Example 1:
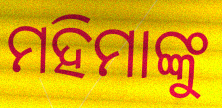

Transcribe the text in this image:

ମହିମାଙ୍କୁ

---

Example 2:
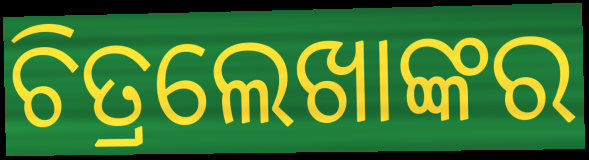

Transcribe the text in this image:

ଚିତ୍ରଲେଖାଙ୍କର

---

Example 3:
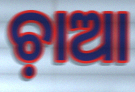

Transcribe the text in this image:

ଚ଼ାଆ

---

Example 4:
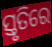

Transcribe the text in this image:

ସ୍ତୃତିରେ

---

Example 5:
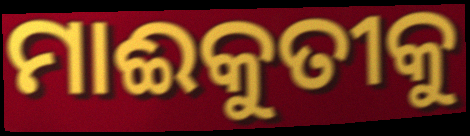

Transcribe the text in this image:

ମାଈକୁତୀକୁ